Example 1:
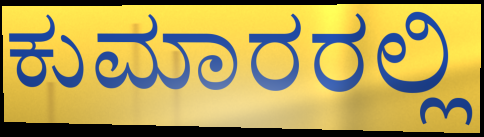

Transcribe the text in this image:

ಕುಮಾರರಲ್ಲಿ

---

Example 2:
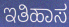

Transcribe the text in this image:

ಇತಿಹಾಸ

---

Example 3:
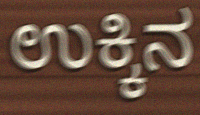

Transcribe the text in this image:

ಉಕ್ಕಿನ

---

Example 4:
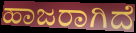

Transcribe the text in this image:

ಹಾಜರಾಗಿದೆ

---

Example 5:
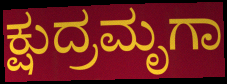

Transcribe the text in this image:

ಕ್ಷುದ್ರಮೃಗಾ